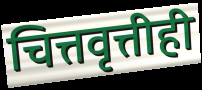
चित्तवृत्तीही